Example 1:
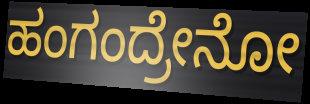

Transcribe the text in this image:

ಹಂಗಂದ್ರೇನೋ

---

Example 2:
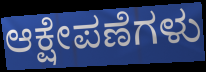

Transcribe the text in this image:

ಆಕ್ಷೇಪಣೆಗಳು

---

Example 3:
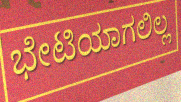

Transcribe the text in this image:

ಭೇಟಿಯಾಗಲಿಲ್ಲ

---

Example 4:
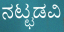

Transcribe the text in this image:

ನಟ್ಟಡವಿ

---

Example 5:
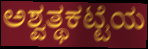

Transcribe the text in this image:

ಅಶ್ವತ್ಥಕಟ್ಟೆಯ